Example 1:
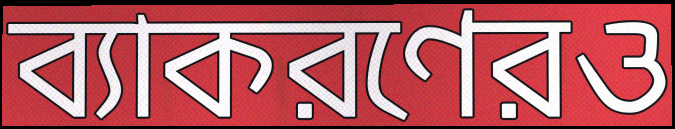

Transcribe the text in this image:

ব্যাকরণেরও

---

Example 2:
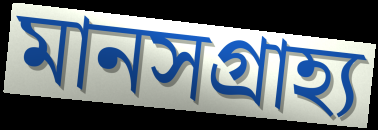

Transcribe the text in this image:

মানসগ্রাহ্য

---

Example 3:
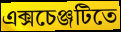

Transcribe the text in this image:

এক্সচেঞ্জটিতে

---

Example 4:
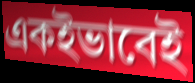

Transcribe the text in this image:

একইভাবেই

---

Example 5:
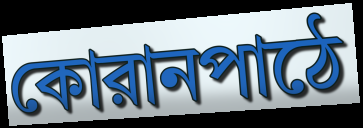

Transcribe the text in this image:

কোরানপাঠে